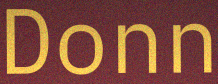
Donn